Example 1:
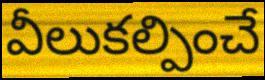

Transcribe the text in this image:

వీలుకల్పించే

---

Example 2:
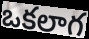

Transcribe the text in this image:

ఒకలాగ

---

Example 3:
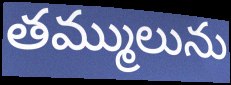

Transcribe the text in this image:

తమ్ములును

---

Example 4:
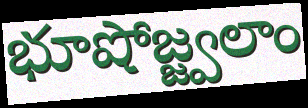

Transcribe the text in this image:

భూషోజ్జ్వలాం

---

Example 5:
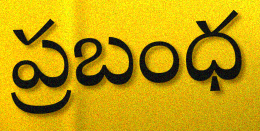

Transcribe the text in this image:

ప్రబంధ